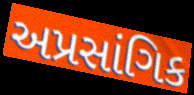
અપ્રસાંગિક